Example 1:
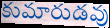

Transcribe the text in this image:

కుమారుడవు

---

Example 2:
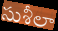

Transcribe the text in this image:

సుశీలా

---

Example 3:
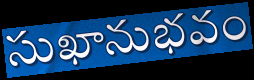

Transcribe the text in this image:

సుఖానుభవం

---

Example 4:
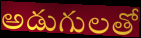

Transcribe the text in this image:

అడుగులతో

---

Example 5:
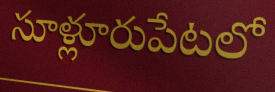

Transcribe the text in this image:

సూళ్లూరుపేటలో